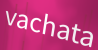
vachata